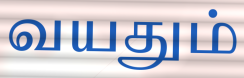
வயதும்